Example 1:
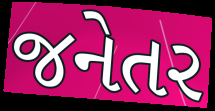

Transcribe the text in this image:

જનેતર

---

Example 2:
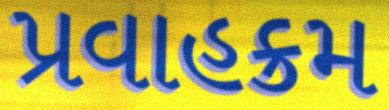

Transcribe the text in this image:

પ્રવાહક્રમ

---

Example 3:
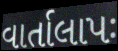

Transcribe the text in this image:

વાર્તાલાપઃ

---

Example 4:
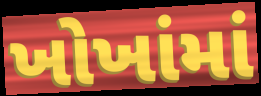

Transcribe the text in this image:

ખોખાંમાં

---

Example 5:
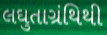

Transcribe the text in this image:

લઘુતાગ્રંથિથી